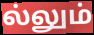
ல்லும்